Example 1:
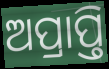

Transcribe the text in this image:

ଅପ୍ରାପ୍ତି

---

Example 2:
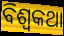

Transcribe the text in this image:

ବିଶ୍ୱକଥା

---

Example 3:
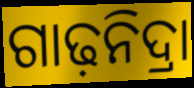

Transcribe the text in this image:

ଗାଢ଼ନିଦ୍ରା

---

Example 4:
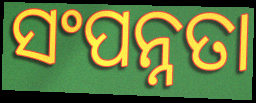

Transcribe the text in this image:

ସଂପନ୍ନତା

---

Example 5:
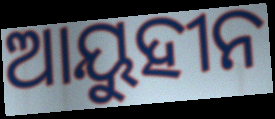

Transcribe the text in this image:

ଆୟୁହୀନ